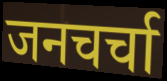
जनचर्चा